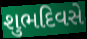
શુભદિવસે